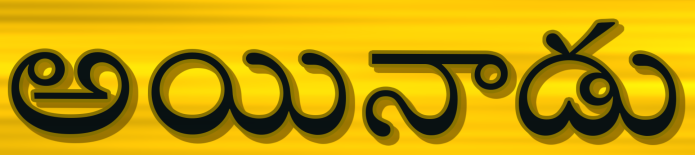
అయినాడు